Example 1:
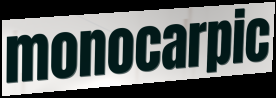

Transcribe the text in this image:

monocarpic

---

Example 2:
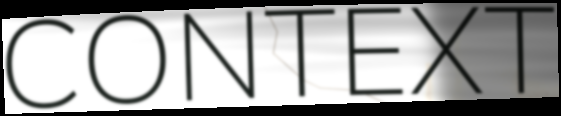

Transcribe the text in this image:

CONTEXT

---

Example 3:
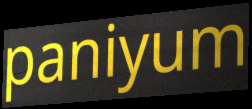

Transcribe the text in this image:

paniyum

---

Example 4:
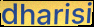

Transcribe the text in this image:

dharisi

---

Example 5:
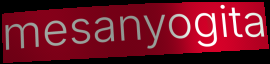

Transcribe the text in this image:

mesanyogita